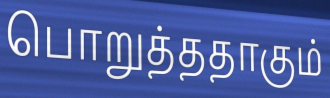
பொறுத்ததாகும்